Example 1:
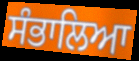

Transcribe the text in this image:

ਸੰਭਾਲਿਆ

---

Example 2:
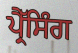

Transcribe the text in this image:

ਪ੍ਰੈੱਸਿੰਗ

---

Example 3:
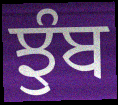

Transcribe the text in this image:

ਝੁੰਬ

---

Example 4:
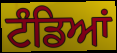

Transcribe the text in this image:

ਟੰਡਿਆਂ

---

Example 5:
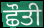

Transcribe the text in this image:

ਛੌਤੀ